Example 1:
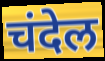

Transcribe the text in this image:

चंदेल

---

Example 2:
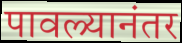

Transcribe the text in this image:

पावल्यानंतर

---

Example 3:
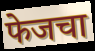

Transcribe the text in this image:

फेजचा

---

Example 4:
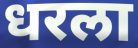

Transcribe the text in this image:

धरला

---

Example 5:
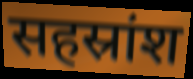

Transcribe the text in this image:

सहस्रांश